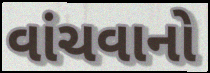
વાંચવાનો